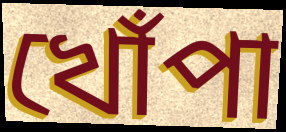
খোঁপা